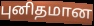
புனிதமான